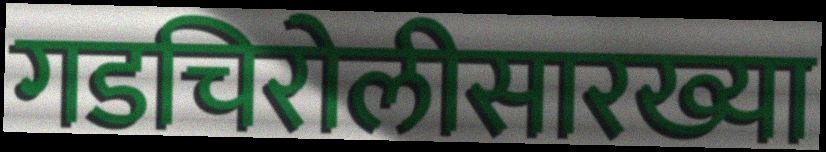
गडचिरोलीसारख्या